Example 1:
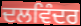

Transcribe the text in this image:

ਦਲਵਿੰਦਰ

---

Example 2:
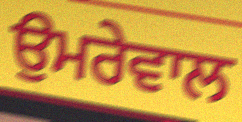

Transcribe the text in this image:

ਉਮਰੇਵਾਲ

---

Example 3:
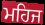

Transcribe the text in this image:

ਮਹਿਜ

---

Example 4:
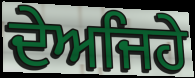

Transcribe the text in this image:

ਦੇਅਜਿਹੇ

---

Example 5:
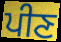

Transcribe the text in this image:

ਪੀਣ